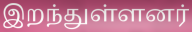
இறந்துள்ளனர்